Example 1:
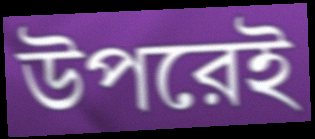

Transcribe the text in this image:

উপরেই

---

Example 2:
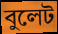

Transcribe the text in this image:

বুলেট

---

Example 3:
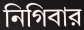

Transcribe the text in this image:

নিগিবার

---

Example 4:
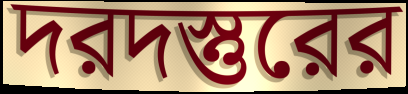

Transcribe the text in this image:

দরদস্তুরের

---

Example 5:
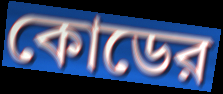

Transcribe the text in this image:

কোডের